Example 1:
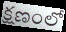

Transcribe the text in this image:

క్షణంలో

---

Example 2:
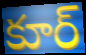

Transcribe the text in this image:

కూర్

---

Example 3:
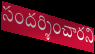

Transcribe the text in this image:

సందర్శించారని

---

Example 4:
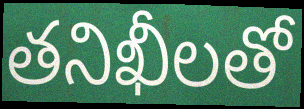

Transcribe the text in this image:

తనిఖీలతో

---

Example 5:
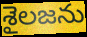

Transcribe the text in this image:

శైలజను